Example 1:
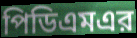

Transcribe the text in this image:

পিডিএমএর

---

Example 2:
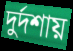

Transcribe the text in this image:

দুর্দশায়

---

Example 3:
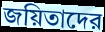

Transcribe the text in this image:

জয়িতাদের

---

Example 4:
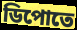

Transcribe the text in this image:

ডিপোতে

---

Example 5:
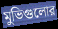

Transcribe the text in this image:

মুভিগুলোর